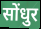
सोंधुर